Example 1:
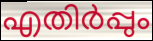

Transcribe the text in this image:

എതിർപ്പും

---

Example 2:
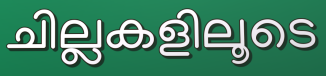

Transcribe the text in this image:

ചില്ലകളിലൂടെ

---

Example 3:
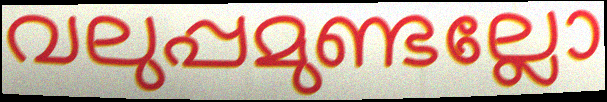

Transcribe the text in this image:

വലുപ്പമുണ്ടല്ലോ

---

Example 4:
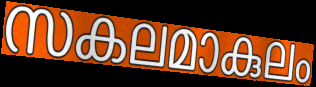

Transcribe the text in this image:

സകലമാകുലം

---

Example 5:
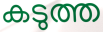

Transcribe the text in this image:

കടുത്ത